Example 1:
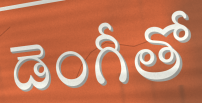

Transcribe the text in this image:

డెంగీతో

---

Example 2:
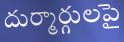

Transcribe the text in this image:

దుర్మార్గులపై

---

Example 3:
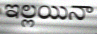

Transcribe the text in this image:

ఇల్లయినా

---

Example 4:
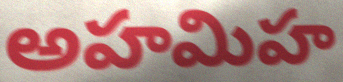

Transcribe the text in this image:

అహమిహ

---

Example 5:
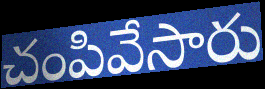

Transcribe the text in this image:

చంపివేసారు